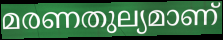
മരണതുല്യമാണ്